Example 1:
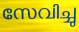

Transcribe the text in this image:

സേവിച്ചു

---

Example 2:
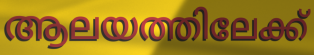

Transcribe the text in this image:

ആലയത്തിലേക്ക്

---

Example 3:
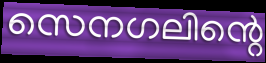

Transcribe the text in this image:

സെനഗലിന്റെ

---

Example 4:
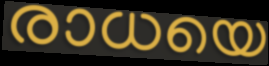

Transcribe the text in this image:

രാധയെ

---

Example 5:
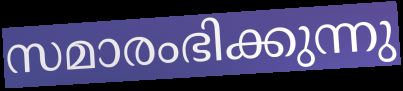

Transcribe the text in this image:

സമാരംഭിക്കുന്നു